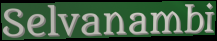
Selvanambi